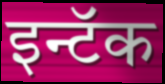
इन्टॅक